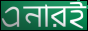
এনারই